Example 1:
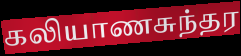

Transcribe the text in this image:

கலியாணசுந்தர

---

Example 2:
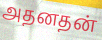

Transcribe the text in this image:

அதனதன்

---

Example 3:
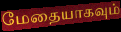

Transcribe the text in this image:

மேதையாகவும்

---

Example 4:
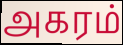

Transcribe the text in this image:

அகரம்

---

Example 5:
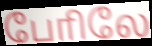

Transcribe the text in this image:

பேரிலே